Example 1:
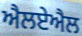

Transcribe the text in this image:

ਐਲਏਐਲ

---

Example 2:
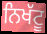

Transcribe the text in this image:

ਨਿਖੱਟੂ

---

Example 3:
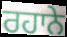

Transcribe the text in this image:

ਰਹਾਨੇ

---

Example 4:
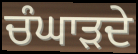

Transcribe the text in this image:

ਚੰਘਾੜਦੇ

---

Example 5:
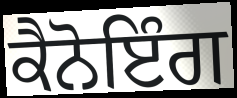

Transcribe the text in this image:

ਕੈਨੋਇੰਗ